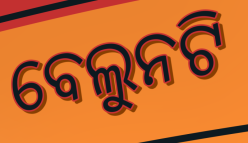
ବେଲୁନଟି